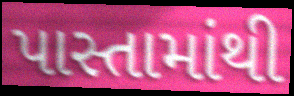
પાસ્તામાંથી